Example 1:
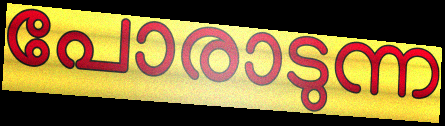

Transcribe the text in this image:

പോരാടുന്ന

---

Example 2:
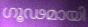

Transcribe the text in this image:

ഗൂഢമായി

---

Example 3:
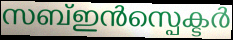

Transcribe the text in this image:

സബ്ഇൻസ്പെക്ടർ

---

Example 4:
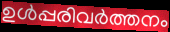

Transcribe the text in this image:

ഉൾപ്പരിവർത്തനം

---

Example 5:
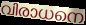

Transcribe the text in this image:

വിരാധനെ